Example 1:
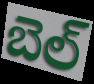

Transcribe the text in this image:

బెల్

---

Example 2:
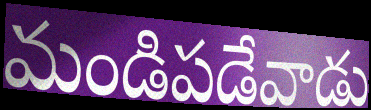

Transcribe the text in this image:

మండిపడేవాడు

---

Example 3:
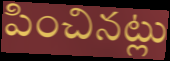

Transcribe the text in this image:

పించినట్లు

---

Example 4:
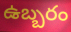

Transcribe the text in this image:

ఉబ్బరం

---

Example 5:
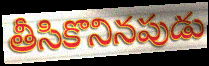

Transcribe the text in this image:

తీసికొనినపుడు